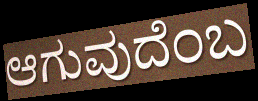
ಆಗುವುದೆಂಬ